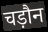
चड़ौन